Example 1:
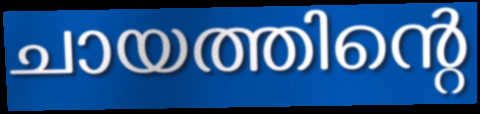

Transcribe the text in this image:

ചായത്തിന്റെ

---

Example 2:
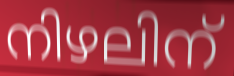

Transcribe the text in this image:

നിഴലിന്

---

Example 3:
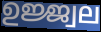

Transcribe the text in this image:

ഉജ്ജ്വല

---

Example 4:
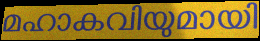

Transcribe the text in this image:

മഹാകവിയുമായി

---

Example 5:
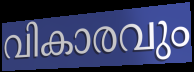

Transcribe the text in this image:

വികാരവും